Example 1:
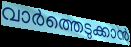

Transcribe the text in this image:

വാർത്തെടുക്കാൻ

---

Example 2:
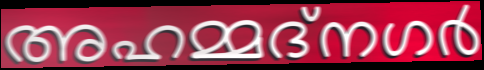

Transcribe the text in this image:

അഹമ്മദ്നഗർ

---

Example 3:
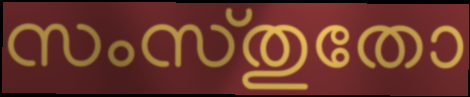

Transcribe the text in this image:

സംസ്തുതോ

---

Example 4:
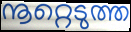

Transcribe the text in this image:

നൂറ്റെടുത്ത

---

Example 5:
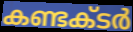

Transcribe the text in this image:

കണ്ടക്‌ടർ